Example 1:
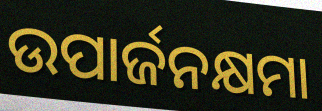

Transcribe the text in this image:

ଉପାର୍ଜନକ୍ଷମା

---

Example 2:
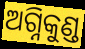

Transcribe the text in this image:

ଅଗ୍ନିକୁଣ୍ଡ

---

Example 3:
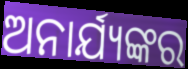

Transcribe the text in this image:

ଅନାର୍ଯ୍ୟଙ୍କର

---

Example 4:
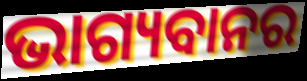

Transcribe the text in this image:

ଭାଗ୍ୟବାନର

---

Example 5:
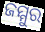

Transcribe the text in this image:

ଜମ୍ମୁର